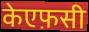
केएफ़सी